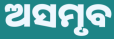
ଅସମୃବ